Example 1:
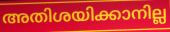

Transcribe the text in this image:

അതിശയിക്കാനില്ല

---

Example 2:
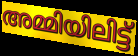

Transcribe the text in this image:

അമ്മിയിലിട്ട്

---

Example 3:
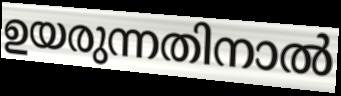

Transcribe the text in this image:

ഉയരുന്നതിനാൽ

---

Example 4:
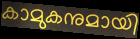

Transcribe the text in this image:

കാമുകനുമായി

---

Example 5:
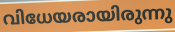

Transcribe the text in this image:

വിധേയരായിരുന്നു